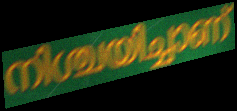
നിശ്ചയിച്ചാണ്